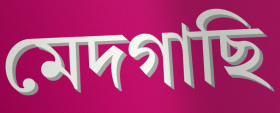
মেদগাছি